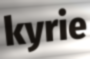
kyrie